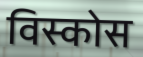
विस्कोस